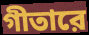
গীতারে